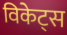
विकेट्स